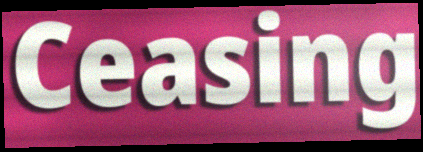
Ceasing